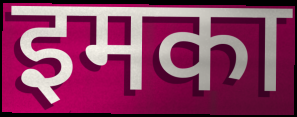
इमका